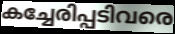
കച്ചേരിപ്പടിവരെ